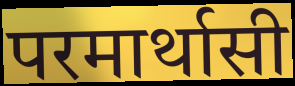
परमार्थासी